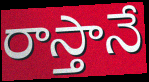
రాస్తానే